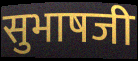
सुभाषजी